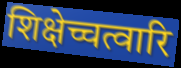
शिक्षेच्चत्वारि